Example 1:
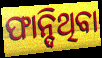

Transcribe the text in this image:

ଫାନ୍ଦିଥିବା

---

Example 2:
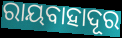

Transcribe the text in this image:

ରାୟବାହାଦୂର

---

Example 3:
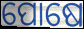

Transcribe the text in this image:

ପୋଷେ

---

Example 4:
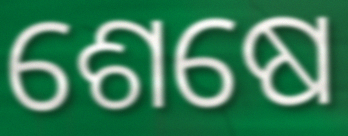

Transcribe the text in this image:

ଶେଷେ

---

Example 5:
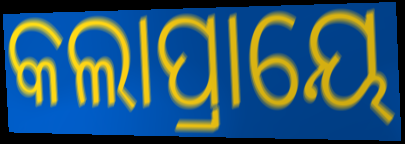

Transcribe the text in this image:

କଲାପ୍ରାୟେ